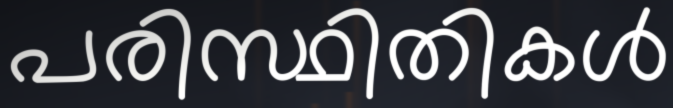
പരിസ്ഥിതികൾ